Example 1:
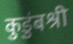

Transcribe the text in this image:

कुडुंबश्री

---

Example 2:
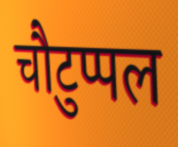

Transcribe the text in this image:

चौटुप्पल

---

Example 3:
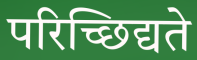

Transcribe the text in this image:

परिच्छिद्यते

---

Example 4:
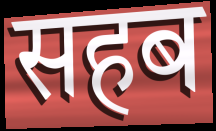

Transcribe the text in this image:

सहब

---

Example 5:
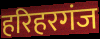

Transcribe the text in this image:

हरिहरगंज